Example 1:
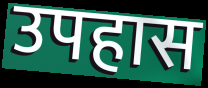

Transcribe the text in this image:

उपहास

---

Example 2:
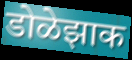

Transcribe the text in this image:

डोळेझाक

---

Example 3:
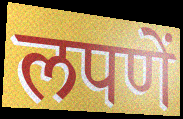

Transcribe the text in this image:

लपणें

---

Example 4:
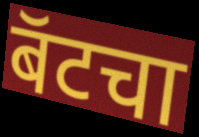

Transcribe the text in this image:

बॅटचा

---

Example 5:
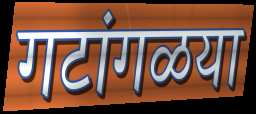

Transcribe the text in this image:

गटांगळया